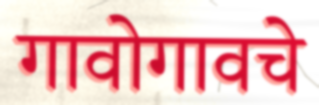
गावोगावचे